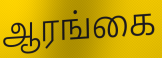
ஆரங்கை